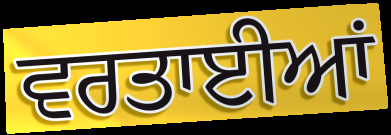
ਵਰਤਾਈਆਂ